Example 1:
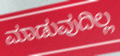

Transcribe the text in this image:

ಮಾಡುವುದಿಲ್ಲ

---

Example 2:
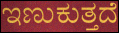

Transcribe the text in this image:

ಇಣುಕುತ್ತದೆ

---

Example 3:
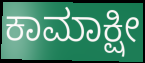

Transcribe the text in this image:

ಕಾಮಾಕ್ಷೀ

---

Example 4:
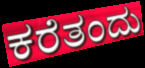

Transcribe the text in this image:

ಕರೆತಂದು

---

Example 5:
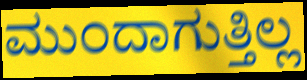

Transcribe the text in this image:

ಮುಂದಾಗುತ್ತಿಲ್ಲ